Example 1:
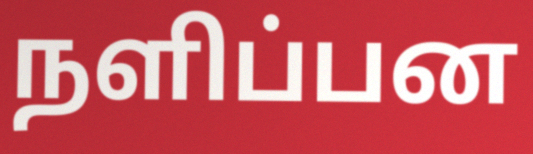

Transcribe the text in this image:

நளிப்பன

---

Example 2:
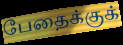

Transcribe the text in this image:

பேதைக்குக்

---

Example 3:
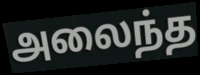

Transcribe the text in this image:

அலைந்த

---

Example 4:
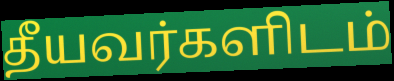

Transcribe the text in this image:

தீயவர்களிடம்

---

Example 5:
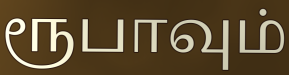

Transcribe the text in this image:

ரூபாவும்